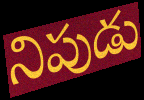
నిపుడు